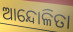
ଆନ୍ଦୋଳିତା